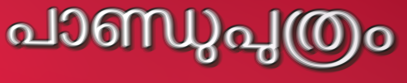
പാണ്ഡുപുത്രം